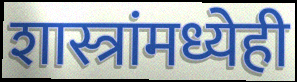
शास्त्रांमध्येही